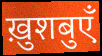
ख़ुशबुएँ